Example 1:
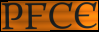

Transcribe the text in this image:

PFCE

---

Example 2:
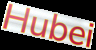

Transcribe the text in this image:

Hubei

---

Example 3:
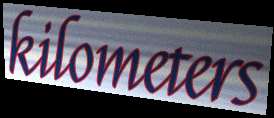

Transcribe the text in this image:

kilometers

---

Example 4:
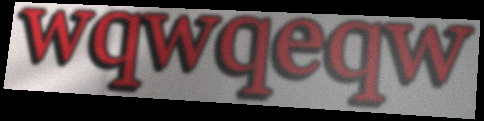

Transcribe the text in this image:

wqwqeqw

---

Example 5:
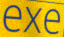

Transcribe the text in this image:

exe